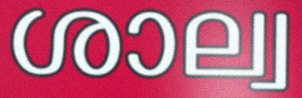
ശാല്വ